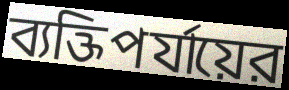
ব্যক্তিপর্যায়ের